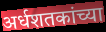
अर्धशतकांच्या